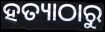
ହତ୍ୟାଠାରୁ